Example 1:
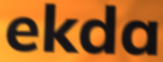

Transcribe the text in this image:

ekda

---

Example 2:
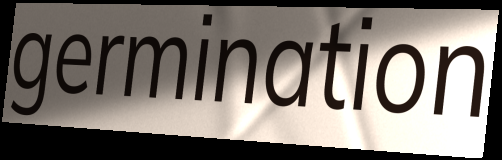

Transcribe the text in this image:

germination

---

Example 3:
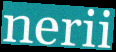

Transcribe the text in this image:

nerii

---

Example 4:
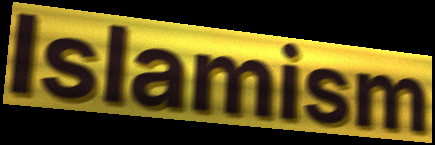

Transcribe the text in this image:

Islamism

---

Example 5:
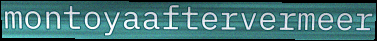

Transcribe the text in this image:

montoyaaftervermeer